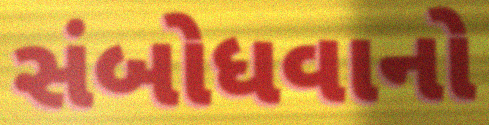
સંબોધવાનો